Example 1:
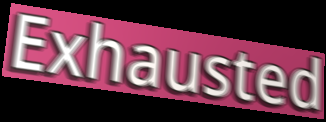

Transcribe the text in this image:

Exhausted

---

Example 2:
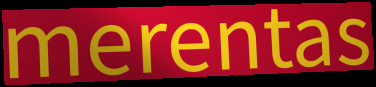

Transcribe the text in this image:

merentas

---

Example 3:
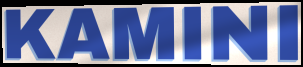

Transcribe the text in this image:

KAMINI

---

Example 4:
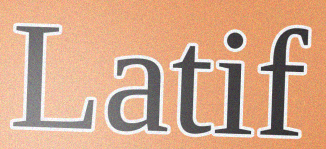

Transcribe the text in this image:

Latif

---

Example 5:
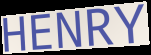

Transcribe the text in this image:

HENRY